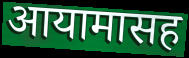
आयामासह